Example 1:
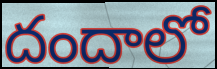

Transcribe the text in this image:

దందాలో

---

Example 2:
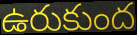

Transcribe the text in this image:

ఉరుకుంద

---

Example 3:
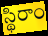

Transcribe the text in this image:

స్థిరాం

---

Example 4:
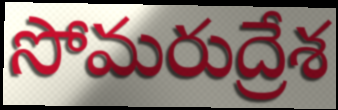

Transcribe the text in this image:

సోమరుద్రేశ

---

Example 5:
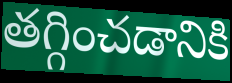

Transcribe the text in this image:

తగ్గించడానికి